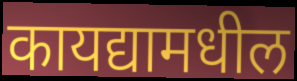
कायद्यामधील